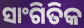
ସାଂଗିତିକ